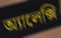
অ্যালেক্সি